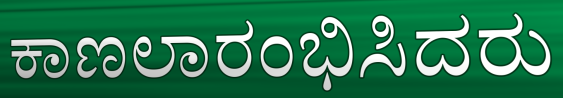
ಕಾಣಲಾರಂಭಿಸಿದರು